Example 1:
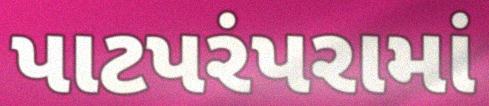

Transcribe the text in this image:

પાટપરંપરામાં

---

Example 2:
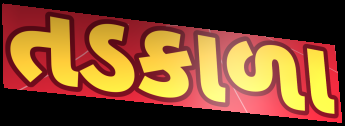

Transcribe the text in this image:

તડકાળા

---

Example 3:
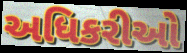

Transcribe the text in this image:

અધિકરીઓ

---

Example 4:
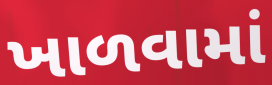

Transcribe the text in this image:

ખાળવામાં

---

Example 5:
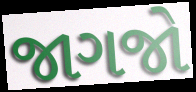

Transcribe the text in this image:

જાગજો